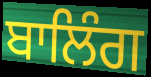
ਬਾਲਿੰਗ